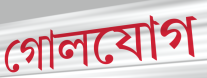
গোলযোগ